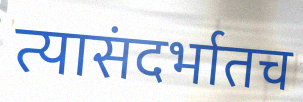
त्यासंदर्भातच